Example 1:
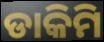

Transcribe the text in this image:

ଡାକିମି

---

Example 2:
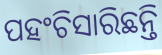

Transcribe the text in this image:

ପହଂଚିସାରିଛନ୍ତି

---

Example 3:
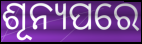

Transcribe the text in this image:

ଶୂନ୍ୟପରେ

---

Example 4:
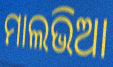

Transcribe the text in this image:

ମାଲଭିଆ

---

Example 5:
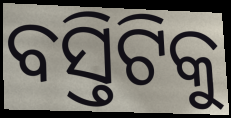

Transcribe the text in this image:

ବସ୍ତିଟିକୁ